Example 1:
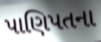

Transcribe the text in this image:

પાણિપતના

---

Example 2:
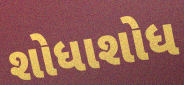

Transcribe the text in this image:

શોધાશોધ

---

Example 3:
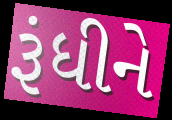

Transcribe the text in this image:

રૂંધીને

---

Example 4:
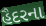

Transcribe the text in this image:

હૈદરના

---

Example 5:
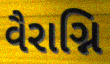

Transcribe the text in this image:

વૈરાગ્નિ